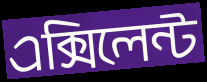
এক্সিলেন্ট